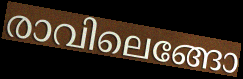
രാവിലെങ്ങോ